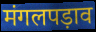
मंगलपड़ाव